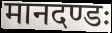
मानदण्डः